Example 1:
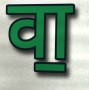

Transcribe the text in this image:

वा॒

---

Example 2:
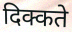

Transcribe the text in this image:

दिक्कते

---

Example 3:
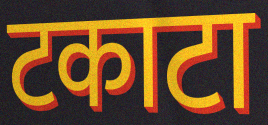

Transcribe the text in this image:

टकाटा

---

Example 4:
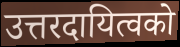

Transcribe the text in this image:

उत्तरदायित्वको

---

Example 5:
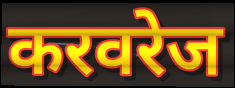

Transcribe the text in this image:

करवरेज